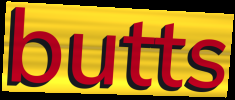
butts